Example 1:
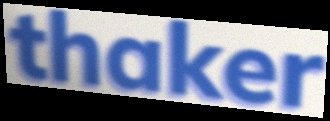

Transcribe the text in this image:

thaker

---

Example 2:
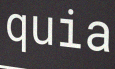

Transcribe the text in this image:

quia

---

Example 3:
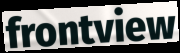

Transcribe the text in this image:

frontview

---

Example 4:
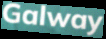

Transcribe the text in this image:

Galway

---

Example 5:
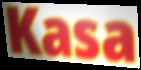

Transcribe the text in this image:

Kasa